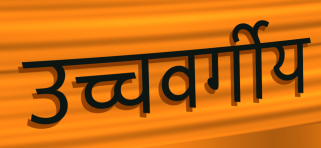
उच्चवर्गीय